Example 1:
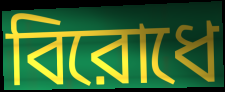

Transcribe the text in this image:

বিরোধে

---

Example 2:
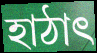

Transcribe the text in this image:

হাঠাৎ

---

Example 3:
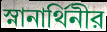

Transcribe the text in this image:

স্নানার্থিনীর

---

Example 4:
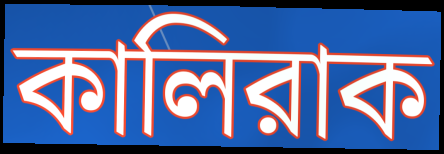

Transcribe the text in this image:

কালিরাক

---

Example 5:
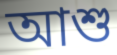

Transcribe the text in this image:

আশু